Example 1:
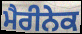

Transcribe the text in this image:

ਮੈਰੀਨੇਕ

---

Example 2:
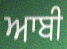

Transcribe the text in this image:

ਆਬੀ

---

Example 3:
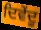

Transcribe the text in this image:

ਦਿਵੇਂਦੂ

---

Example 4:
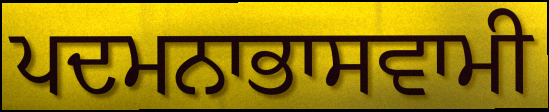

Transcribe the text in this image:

ਪਦਮਨਾਭਾਸਵਾਮੀ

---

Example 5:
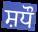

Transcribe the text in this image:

ਸ਼ਧੌ